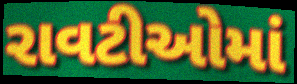
રાવટીઓમાં